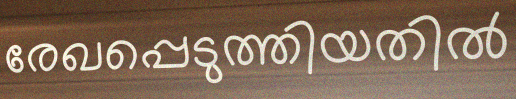
രേഖപ്പെടുത്തിയതിൽ